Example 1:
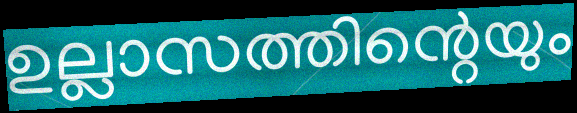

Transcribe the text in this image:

ഉല്ലാസത്തിന്റെയും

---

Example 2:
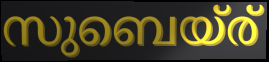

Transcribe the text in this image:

സുബെയ്ര്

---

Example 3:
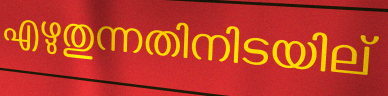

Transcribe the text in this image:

എഴുതുന്നതിനിടയില്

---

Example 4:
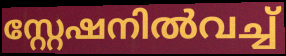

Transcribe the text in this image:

സ്റ്റേഷനിൽവച്ച്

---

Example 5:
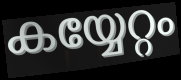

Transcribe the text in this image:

കയ്യേറ്റം